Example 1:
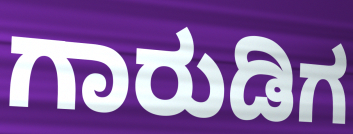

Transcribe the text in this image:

ಗಾರುಡಿಗ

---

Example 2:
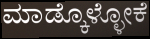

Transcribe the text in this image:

ಮಾಡ್ಕೊಳ್ಳೋಕೆ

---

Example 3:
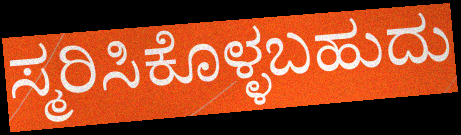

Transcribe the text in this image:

ಸ್ಮರಿಸಿಕೊಳ್ಳಬಹುದು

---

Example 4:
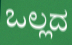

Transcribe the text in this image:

ಒಲ್ಲದ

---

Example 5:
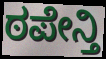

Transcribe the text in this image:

ಠಪೇನ್ತಿ